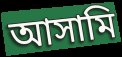
আসামি